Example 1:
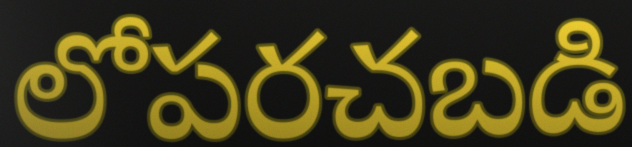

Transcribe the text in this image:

లోపరచబడి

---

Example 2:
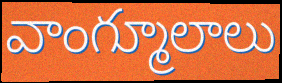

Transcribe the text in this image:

వాంగ్మూలాలు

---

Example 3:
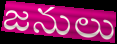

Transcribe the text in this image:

జనులు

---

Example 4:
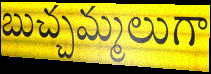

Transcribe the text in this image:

బుచ్చమ్మలుగా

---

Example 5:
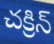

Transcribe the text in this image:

చక్రిన్